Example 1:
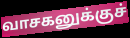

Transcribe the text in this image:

வாசகனுக்குச்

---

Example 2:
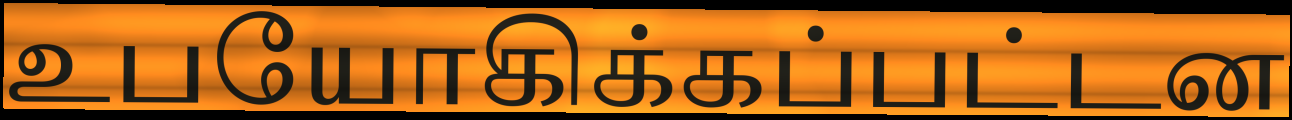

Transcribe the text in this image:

உபயோகிக்கப்பட்டன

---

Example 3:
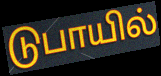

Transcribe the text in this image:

டுபாயில்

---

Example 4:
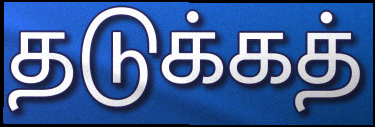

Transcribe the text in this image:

தடுக்கத்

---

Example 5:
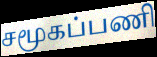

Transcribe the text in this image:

சமூகப்பணி